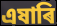
এষাৰি